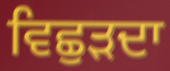
ਵਿਛੁੜਦਾ